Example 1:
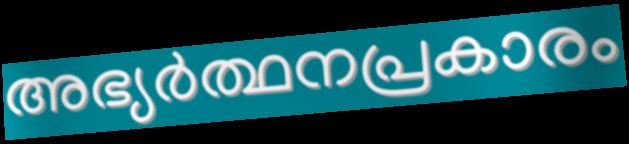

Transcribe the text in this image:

അഭ്യർത്ഥനപ്രകാരം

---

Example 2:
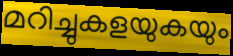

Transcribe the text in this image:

മറിച്ചുകളയുകയും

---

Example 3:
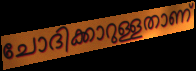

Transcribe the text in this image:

ചോദിക്കാറുള്ളതാണ്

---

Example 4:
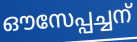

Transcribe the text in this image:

ഔസേപ്പച്ചന്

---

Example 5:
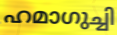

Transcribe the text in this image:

ഹമാഗുച്ചി